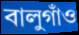
বালুগাঁও